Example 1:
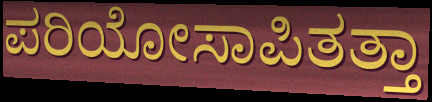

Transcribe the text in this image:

ಪರಿಯೋಸಾಪಿತತ್ತಾ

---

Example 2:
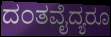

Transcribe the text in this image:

ದಂತವೈದ್ಯರೂ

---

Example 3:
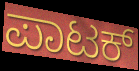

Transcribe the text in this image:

ಪಾಟಕ್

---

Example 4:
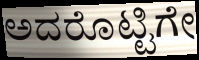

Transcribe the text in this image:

ಅದರೊಟ್ಟಿಗೇ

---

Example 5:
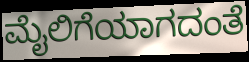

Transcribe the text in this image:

ಮೈಲಿಗೆಯಾಗದಂತೆ